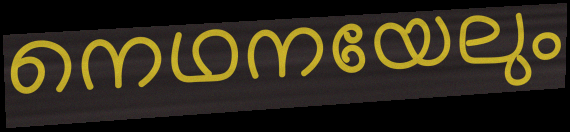
നെഥനയേലും